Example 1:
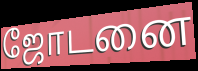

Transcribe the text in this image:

ஜோடனை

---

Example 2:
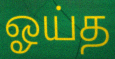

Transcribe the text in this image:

ஓய்த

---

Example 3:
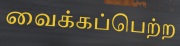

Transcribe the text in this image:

வைக்கப்பெற்ற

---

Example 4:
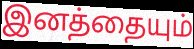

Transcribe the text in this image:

இனத்தையும்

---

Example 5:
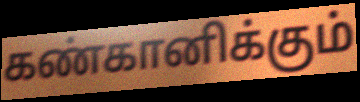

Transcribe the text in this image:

கண்கானிக்கும்